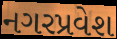
નગરપ્રવેશ